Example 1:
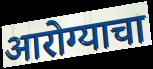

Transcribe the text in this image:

आरोग्याचा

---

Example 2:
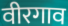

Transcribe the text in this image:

वीरगाव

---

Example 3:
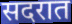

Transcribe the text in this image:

सदरात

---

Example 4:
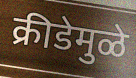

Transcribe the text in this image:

क्रीडेमुळे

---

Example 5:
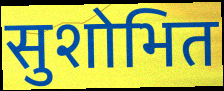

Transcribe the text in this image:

सुशोभित